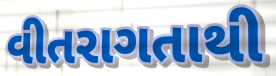
વીતરાગતાથી